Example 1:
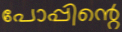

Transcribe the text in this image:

പോപ്പിന്റെ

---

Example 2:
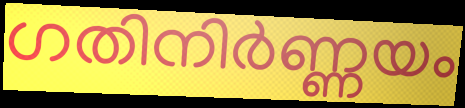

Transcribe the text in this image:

ഗതിനിർണ്ണയം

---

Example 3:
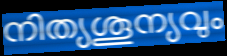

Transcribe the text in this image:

നിത്യശൂന്യവും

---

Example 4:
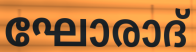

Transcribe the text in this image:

ഘോരാദ്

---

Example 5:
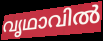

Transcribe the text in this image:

വൃഥാവിൽ